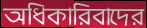
অধিকারিবাদের